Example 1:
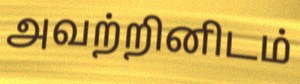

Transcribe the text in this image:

அவற்றினிடம்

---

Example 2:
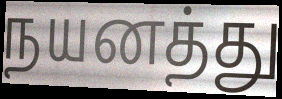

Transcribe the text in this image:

நயனத்து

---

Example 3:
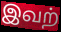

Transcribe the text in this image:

இவற்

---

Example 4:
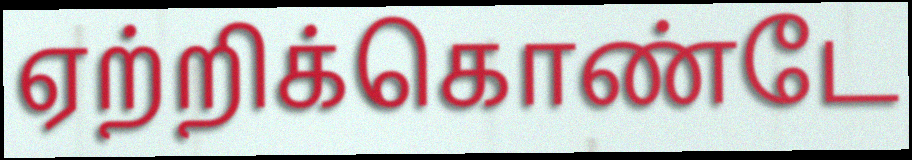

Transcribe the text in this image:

ஏற்றிக்கொண்டே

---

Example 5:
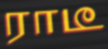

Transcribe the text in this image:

ராடீ